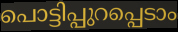
പൊട്ടിപ്പുറപ്പെടാം